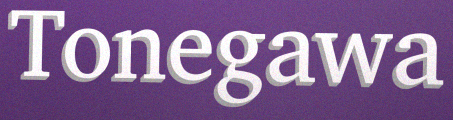
Tonegawa